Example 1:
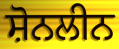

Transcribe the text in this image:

ਸ਼ੋਨਲੀਨ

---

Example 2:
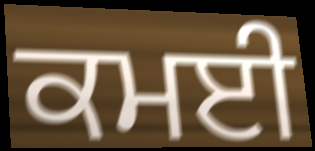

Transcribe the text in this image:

ਕਮਈ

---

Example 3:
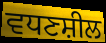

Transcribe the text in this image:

ਵਧਣਸ਼ੀਲ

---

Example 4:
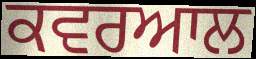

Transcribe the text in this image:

ਕਵਰਆਲ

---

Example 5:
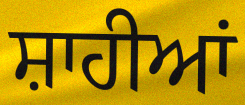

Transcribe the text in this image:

ਸ਼ਾਹੀਆਂ